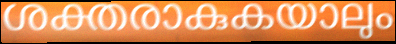
ശക്തരാകുകയാലും